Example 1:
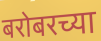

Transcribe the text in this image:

बरोबरच्या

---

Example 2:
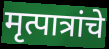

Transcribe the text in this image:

मृत्पात्रांचे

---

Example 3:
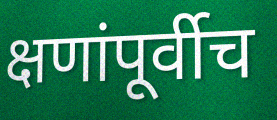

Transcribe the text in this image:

क्षणांपूर्वीच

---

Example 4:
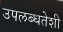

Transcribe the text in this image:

उपलब्धतेशी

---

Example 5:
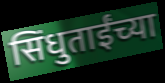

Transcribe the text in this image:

सिंधुताईंच्या